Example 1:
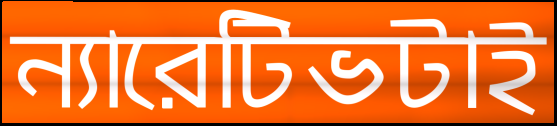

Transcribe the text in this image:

ন্যারেটিভটাই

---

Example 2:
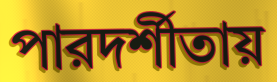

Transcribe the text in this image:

পারদর্শীতায়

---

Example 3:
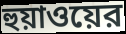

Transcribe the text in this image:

হুয়াওয়ের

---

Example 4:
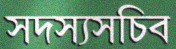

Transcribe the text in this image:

সদস্যসচিব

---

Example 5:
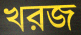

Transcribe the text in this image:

খরজ